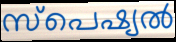
സ്പെഷ്യൽ